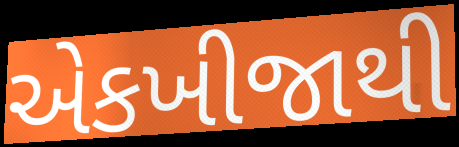
એકખીજાથી